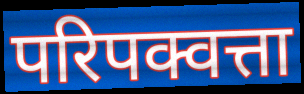
परिपक्वत्ता